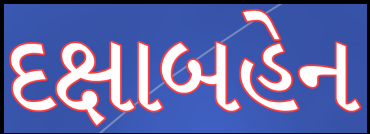
દક્ષાબહેન